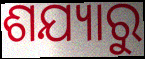
ଶଯ୍ୟାରୁ